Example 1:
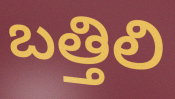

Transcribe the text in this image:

బత్తిలి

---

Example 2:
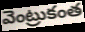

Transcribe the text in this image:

వెంట్రుకంత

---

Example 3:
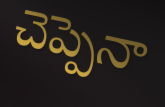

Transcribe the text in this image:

చెప్పెనా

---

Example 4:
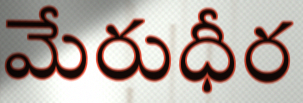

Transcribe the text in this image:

మేరుధీర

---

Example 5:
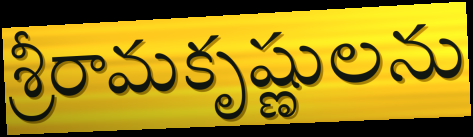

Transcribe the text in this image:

శ్రీరామకృష్ణులను